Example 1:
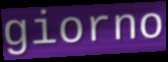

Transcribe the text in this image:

giorno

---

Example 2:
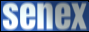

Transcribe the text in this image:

senex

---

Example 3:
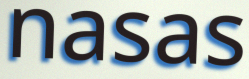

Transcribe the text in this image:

nasas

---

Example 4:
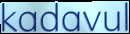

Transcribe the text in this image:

kadavul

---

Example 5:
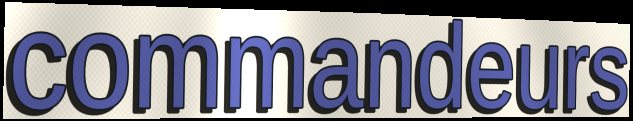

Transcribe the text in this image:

commandeurs